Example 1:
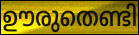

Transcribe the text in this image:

ഊരുതെണ്ടി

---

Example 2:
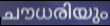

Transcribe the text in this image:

ചൗധരിയും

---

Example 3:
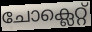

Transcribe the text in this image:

ചോക്ലെറ്റ്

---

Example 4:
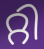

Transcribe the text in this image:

റ്റി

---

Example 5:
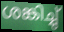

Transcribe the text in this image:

ശങ്കിച്ചു്